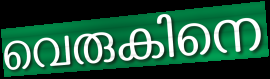
വെരുകിനെ